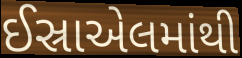
ઈસ્રાએલમાંથી